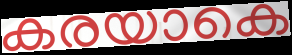
കരയാകെ